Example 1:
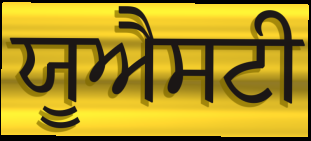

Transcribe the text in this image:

ਯੂਐਸਟੀ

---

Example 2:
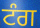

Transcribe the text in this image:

ਟੰਗ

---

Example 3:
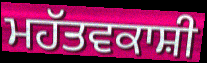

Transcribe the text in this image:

ਮਹੱਤਵਕਾਸ਼ੀ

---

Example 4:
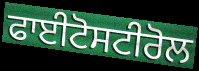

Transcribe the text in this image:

ਫਾਈਟੋਸਟੀਰੋਲ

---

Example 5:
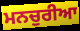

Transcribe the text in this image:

ਮਨਚੁਰੀਆ